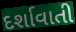
દર્શાવાતી